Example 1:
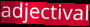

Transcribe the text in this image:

adjectival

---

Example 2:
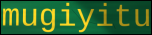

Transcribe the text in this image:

mugiyitu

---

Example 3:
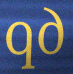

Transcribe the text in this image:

qd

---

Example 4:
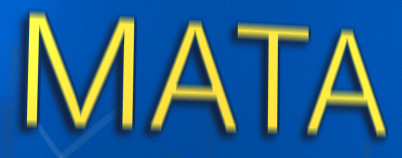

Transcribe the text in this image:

MATA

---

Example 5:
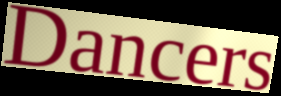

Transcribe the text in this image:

Dancers